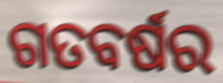
ଗତବର୍ଷର